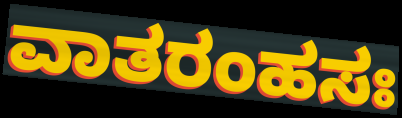
ವಾತರಂಹಸಃ